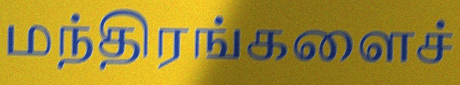
மந்திரங்களைச்